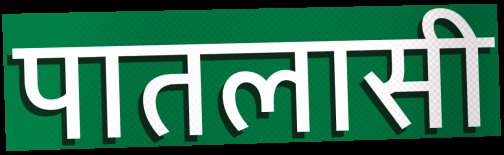
पातलासी